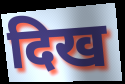
दिख